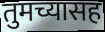
तुमच्यासह